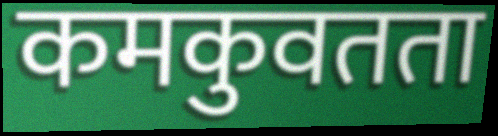
कमकुवतता